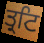
ਤ੍ਰਟਿ